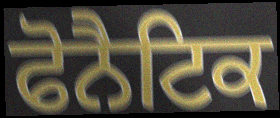
ਫੋਨੈਟਿਕ